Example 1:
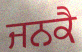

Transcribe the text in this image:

ਜਨਕੈ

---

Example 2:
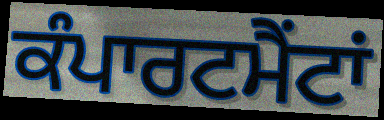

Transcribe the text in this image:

ਕੰਪਾਰਟਮੈਂਟਾਂ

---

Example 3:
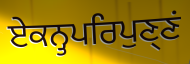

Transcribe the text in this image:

ਏਕਨ੍ਤਪਰਿਪੁਣ੍ਣਂ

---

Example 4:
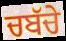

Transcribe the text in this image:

ਚਬੱਚੇ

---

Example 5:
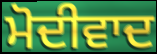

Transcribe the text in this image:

ਮੋਦੀਵਾਦ